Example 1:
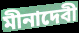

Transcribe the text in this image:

মীনাদেবী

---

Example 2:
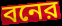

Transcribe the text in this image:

বনের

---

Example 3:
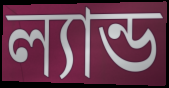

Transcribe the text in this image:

ল্যান্ড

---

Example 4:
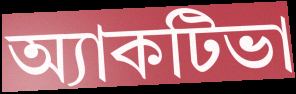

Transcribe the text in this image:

অ্যাকটিভা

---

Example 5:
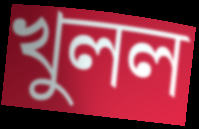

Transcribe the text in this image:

খুলল